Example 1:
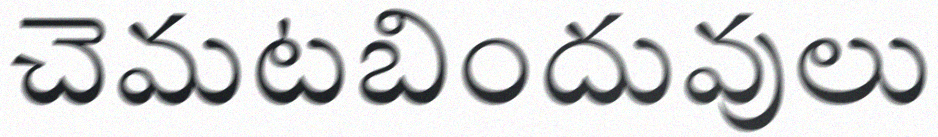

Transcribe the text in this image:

చెమటబిందువులు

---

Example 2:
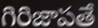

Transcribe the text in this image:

గిరిజాపతే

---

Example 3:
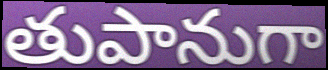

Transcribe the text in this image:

తుపానుగా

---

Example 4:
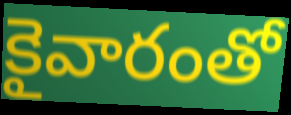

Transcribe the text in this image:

కైవారంతో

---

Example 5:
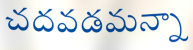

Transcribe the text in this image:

చదవడమన్నా